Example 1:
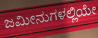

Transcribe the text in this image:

ಜಮೀನುಗಳಲ್ಲಿಯೇ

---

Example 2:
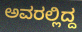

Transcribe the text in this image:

ಅವರಲ್ಲಿದ್ದ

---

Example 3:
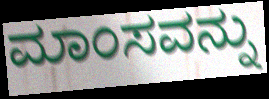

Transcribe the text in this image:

ಮಾಂಸವನ್ನು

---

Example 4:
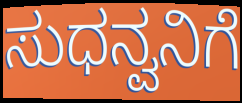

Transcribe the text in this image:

ಸುಧನ್ವನಿಗೆ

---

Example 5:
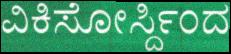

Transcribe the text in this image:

ವಿಕಿಸೋರ್ಸ್ದಿಂದ